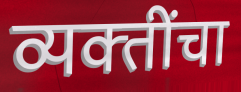
व्यक्‍तींचा